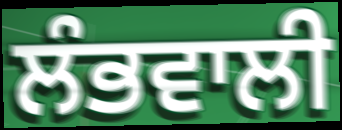
ਲੰਭਵਾਲੀ